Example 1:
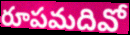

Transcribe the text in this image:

రూపమదివో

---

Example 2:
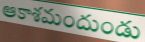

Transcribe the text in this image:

ఆకాశమందుండు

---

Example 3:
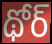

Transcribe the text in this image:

థోర్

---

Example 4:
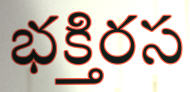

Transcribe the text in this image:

భక్తిరస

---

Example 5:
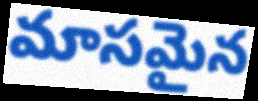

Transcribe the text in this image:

మాసమైన